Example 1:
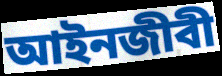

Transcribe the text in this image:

আইনজীবী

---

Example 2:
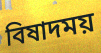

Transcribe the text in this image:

বিষাদময়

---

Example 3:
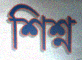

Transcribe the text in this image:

শিশ্ন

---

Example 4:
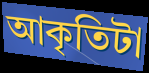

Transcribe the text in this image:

আকৃতিটা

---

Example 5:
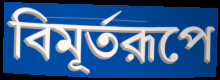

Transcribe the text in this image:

বিমূর্তরূপে